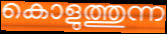
കൊളുത്തുന്ന